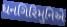
ધનગિરિમુનિએ